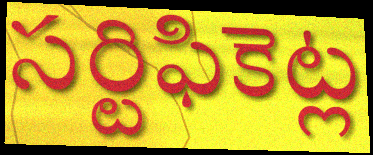
సర్టిఫికెట్ల